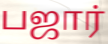
பஜார்